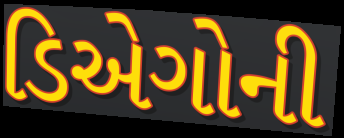
ડિએગોની